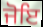
ਜੋਇ